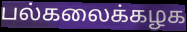
பல்கலைக்கழக